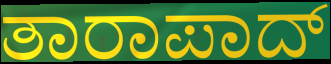
ತಾರಾಪಾದ್